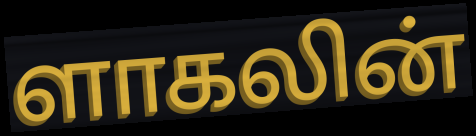
ளாகலின்